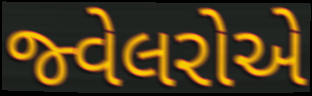
જ્વેલરોએ